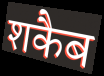
शकैब